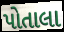
પોતાલા